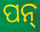
ପନ୍